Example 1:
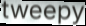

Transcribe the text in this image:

tweepy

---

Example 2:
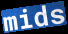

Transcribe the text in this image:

mids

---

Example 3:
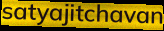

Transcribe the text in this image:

satyajitchavan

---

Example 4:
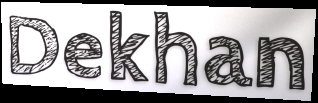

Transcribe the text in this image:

Dekhan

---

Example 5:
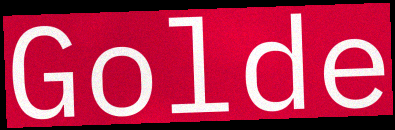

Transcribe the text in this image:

Golde